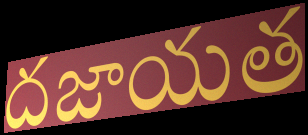
దజాయత